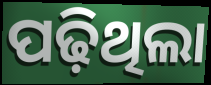
ପଢ଼ିଥିଲା